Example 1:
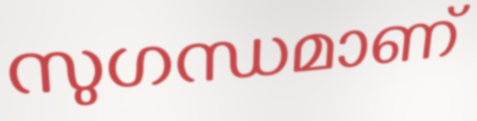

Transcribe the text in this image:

സുഗന്ധമാണ്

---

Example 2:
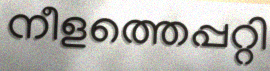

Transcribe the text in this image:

നീളത്തെപ്പറ്റി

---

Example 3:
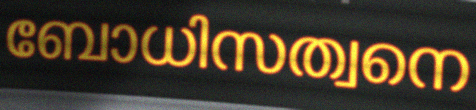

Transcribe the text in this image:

ബോധിസത്വനെ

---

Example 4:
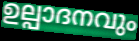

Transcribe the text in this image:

ഉല്പാദനവും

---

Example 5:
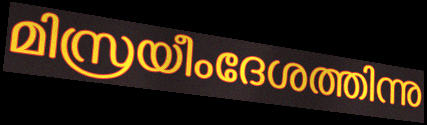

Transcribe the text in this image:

മിസ്രയീംദേശത്തിന്നു